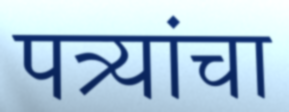
पत्र्यांचा